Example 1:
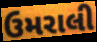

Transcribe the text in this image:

ઉમરાલી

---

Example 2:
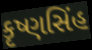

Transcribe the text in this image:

કૃષ્ણસિંહ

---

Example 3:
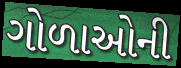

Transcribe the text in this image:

ગોળાઓની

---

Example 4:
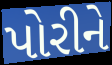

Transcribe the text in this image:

પોરીને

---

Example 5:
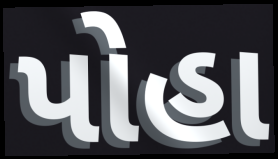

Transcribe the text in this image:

પોહા